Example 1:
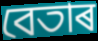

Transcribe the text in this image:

বেতাৰ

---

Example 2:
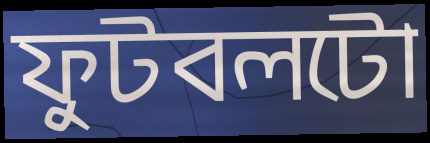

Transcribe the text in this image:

ফুটবলটো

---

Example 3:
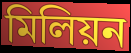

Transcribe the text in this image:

মিলিয়ন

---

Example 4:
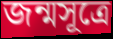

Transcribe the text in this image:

জন্মসূত্ৰে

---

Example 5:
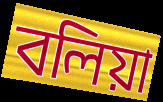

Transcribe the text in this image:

বলিয়া